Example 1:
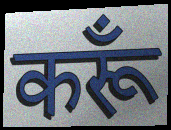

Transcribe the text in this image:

करूँ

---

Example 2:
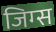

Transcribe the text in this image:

जिग्स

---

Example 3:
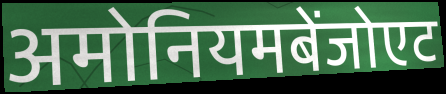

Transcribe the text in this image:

अमोनियमबेंजोएट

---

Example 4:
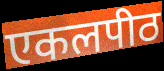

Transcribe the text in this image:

एकलपीठ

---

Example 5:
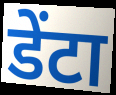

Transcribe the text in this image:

डेंटा